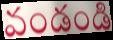
వండండి